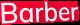
Barber